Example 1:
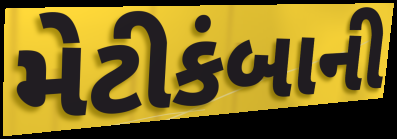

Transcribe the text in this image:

મેટીકંબાની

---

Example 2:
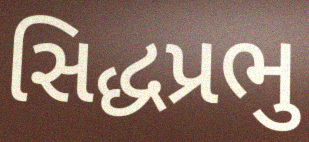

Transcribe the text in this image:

સિદ્ધપ્રભુ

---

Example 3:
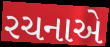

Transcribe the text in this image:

રચનાએ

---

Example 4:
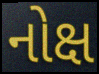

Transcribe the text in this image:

નોક્ષ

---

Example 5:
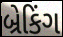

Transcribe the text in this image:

બ્રેકિંગ